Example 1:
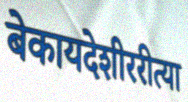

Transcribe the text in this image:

बेकायदेशीररीत्या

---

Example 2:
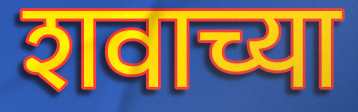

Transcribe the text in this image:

शवाच्या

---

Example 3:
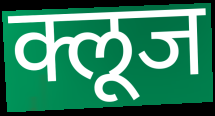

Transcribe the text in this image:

क्लूज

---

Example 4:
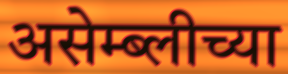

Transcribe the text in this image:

असेम्ब्लीच्या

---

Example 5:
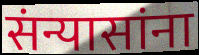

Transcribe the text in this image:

संन्यासांना